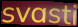
svasti